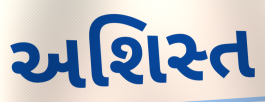
અશિસ્ત